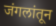
जंगलांतून